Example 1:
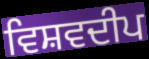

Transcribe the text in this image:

ਵਿਸ਼ਵਦੀਪ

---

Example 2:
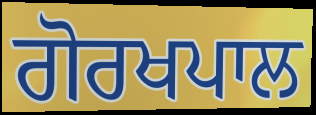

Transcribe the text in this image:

ਗੋਰਖਪਾਲ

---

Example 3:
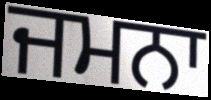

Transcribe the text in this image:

ਜਮਨਾ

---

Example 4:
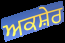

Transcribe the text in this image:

ਅਕਸ਼ੇਰ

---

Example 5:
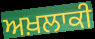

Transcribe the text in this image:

ਅਖ਼ਲਾਕੀ